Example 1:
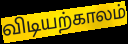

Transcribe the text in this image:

விடியற்காலம்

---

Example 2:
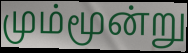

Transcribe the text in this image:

மும்மூன்று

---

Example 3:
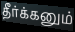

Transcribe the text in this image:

தீர்க்கனும்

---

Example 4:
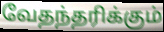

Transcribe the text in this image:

வேதந்தரிக்கும்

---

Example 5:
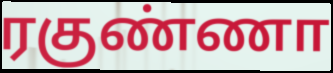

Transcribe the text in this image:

ரகுண்ணா